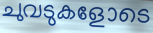
ചുവടുകളോടെ